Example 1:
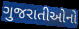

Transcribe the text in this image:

ગુજરાતીઓનો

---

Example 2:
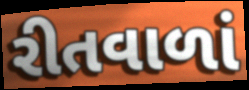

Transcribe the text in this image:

રીતવાળાં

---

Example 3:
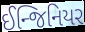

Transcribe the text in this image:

ઈન્જિનિયર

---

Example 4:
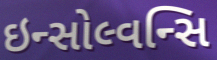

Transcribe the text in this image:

ઇન્સોલ્વન્સિ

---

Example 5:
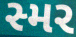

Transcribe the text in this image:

સ્મર